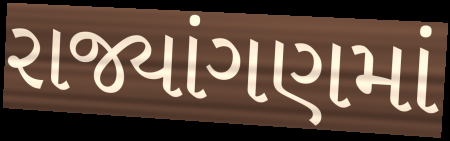
રાજ્યાંગણમાં